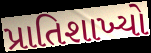
પ્રાતિશાખ્યો